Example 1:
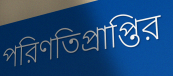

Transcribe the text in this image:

পরিণতিপ্রাপ্তির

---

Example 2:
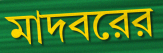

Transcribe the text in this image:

মাদবরের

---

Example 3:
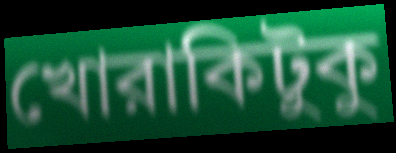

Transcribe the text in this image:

খোরাকিটুকু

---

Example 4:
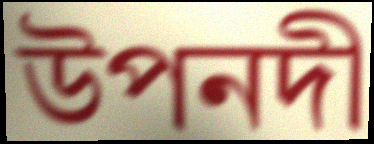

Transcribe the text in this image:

উপনদী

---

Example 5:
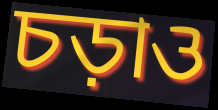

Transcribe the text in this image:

চড়াও